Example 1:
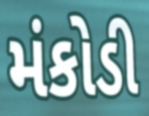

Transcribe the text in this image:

મંકોડી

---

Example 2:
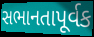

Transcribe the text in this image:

સભાનતાપૂર્વક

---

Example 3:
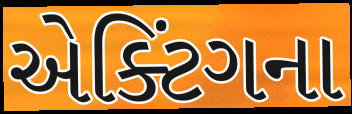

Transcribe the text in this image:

એક્ટિંગના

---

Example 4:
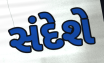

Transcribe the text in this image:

સંદેશે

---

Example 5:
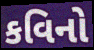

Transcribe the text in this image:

કવિનો